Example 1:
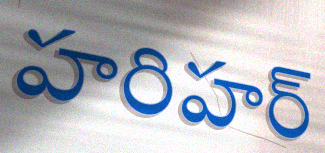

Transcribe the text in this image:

హరిహర్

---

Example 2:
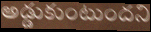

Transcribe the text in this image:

అడ్డుకుంటుందని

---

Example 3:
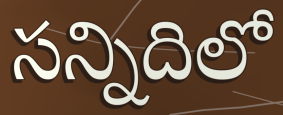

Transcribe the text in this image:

సన్నిదిలో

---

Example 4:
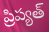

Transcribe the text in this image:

ప్రిప్యత్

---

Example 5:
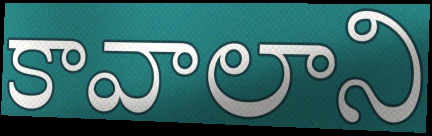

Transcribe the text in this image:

కావాలాని